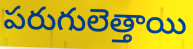
పరుగులెత్తాయి